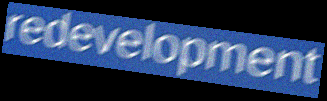
redevelopment